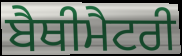
ਬੈਥੀਮੈਟਰੀ